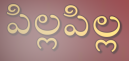
పిల్లపిల్ల